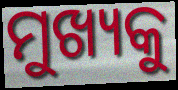
ମୁଖ୍ୟକୁ